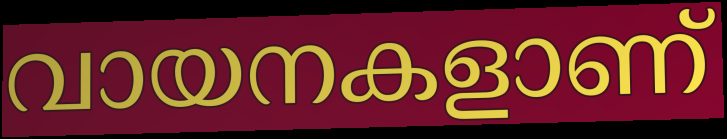
വായനകളാണ്